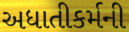
અધાતીકર્મની